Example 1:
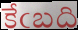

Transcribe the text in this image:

కేఁబది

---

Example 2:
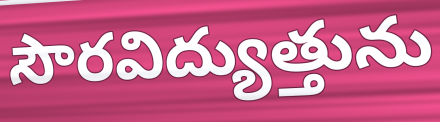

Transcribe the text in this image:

సౌరవిద్యుత్తును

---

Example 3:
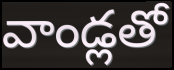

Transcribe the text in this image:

వాండ్లతో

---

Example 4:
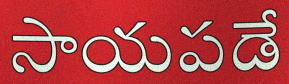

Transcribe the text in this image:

సాయపడే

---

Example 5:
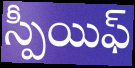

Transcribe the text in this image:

స్పీయిఫ్